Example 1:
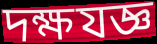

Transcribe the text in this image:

দক্ষযজ্ঞ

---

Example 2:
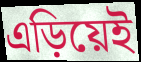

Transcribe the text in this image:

এড়িয়েই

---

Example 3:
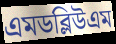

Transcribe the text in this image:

এমডব্লিউএম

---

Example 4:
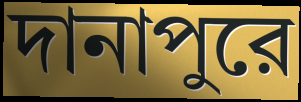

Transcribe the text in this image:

দানাপুরে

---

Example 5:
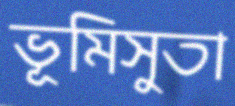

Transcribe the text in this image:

ভূমিসুতা